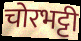
चोरभट्टी